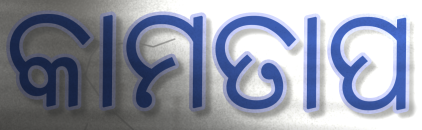
କାମତାପ